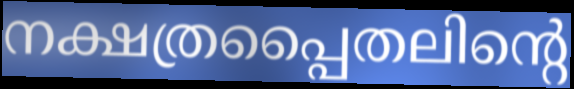
നക്ഷത്രപ്പൈതലിന്റെ